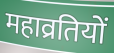
महाव्रतियों